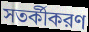
সতর্কীকরণ